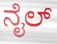
ನೈಲ್